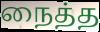
நைத்த